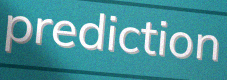
prediction